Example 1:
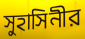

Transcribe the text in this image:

সুহাসিনীর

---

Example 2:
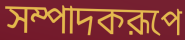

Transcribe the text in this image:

সম্পাদকরূপে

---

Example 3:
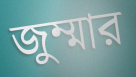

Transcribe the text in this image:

জুম্মার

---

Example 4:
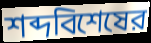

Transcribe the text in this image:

শব্দবিশেষের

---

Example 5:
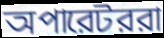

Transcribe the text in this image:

অপারেটররা